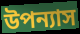
উপন্যাস